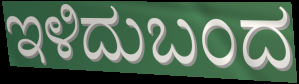
ಇಳಿದುಬಂದ